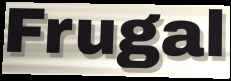
Frugal